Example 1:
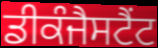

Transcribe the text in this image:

ਡੀਕੰਜੈਸਟੈਂਟ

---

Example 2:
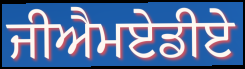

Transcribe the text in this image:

ਜੀਐਮਏਡੀਏ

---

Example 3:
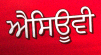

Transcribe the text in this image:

ਐਸਿਊਵੀ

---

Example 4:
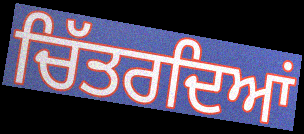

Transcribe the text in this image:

ਚਿੱਤਰਦਿਆਂ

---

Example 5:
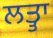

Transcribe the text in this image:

ਲਤ੍ਤਾ